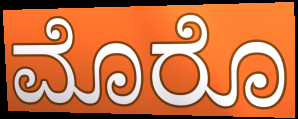
ಮೊರೊ